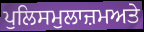
ਪੁਲਿਸਮੁਲਾਜ਼ਮਅਤੇ